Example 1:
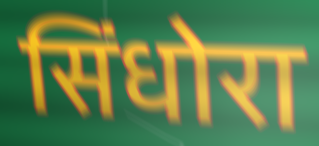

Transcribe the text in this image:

सिंधोरा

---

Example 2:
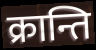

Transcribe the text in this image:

क्रान्ति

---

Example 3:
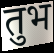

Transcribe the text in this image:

तुभ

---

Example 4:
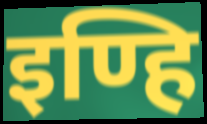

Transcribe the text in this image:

इण्हि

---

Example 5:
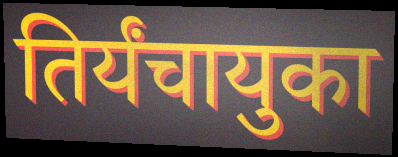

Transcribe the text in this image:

तिर्यंचायुका